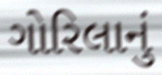
ગોરિલાનું